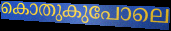
കൊതുകുപോലെ